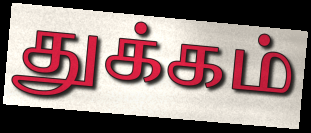
துக்கம்